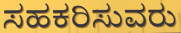
ಸಹಕರಿಸುವರು